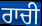
ਰਾਚੀ